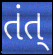
તંત્